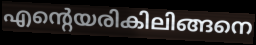
എന്റെയരികിലിങ്ങനെ